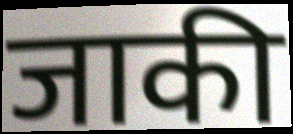
जाकी